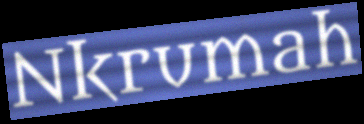
Nkrumah